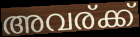
അവര്ക്ക്